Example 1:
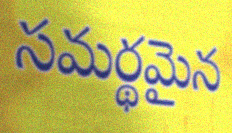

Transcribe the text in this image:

సమర్థమైన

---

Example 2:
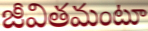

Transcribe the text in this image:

జీవితమంటూ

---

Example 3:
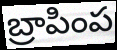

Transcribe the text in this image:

బ్రాపింప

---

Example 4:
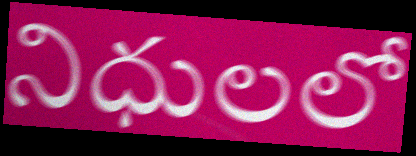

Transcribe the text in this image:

నిధులలో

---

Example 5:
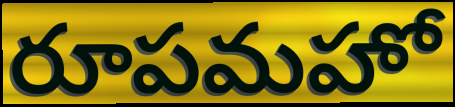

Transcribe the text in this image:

రూపమహో